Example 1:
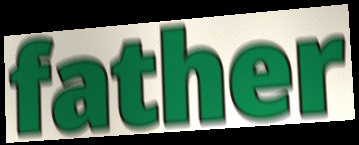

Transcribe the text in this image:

father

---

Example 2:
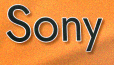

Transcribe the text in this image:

Sony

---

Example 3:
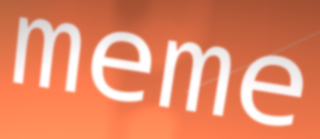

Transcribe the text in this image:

meme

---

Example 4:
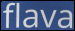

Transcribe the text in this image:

flava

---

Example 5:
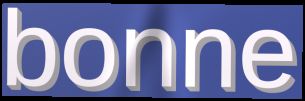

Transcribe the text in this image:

bonne